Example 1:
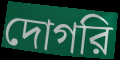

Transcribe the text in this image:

দোগরি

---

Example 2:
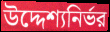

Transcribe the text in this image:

উদ্দেশ্যনির্ভর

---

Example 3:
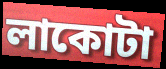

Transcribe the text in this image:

লাকোটা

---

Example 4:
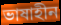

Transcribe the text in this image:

ভাষাহীন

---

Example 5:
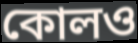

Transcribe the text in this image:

কোলও